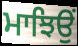
ਮਾਝਿਉਂ